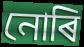
নোৰি